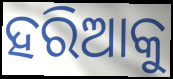
ହରିଆକୁ